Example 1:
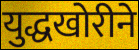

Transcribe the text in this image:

युद्धखोरीने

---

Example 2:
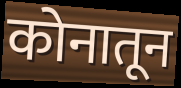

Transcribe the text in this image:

कोनातून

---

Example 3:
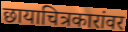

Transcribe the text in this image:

छायाचित्रकारांवर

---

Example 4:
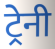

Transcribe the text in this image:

ट्रेनी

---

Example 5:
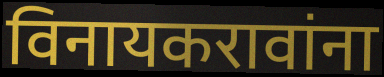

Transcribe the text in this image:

विनायकरावांना